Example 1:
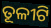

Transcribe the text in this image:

ତୂଳୀଟି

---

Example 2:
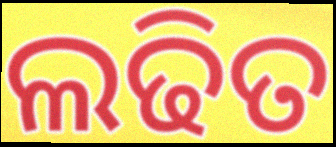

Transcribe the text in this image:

ଲଢିତ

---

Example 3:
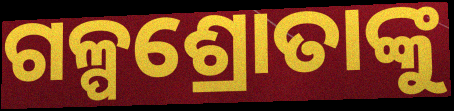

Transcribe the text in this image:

ଗଳ୍ପଶ୍ରୋତାଙ୍କୁ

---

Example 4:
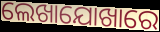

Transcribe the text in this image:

ଲେଖାଯୋଖାରେ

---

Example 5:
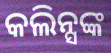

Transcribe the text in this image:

କଲିନ୍ସଙ୍କ